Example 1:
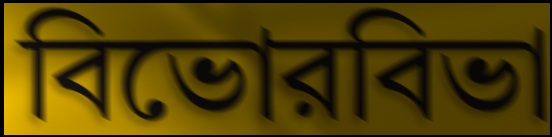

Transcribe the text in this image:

বিভোরবিভা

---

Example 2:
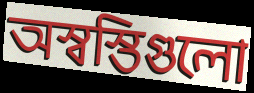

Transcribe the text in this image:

অস্বস্তিগুলো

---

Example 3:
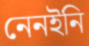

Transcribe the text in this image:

নেনইনি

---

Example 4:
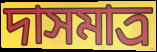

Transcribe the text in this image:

দাসমাত্র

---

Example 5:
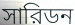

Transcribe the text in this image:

সারিডন